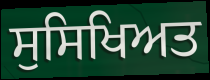
ਸੁਸਿਖਿਅਤ